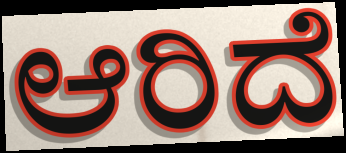
ಆರಿದೆ